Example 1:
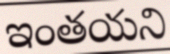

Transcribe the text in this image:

ఇంతయని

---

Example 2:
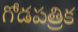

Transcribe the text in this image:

గోడపత్రిక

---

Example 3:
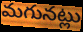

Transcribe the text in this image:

మగునట్లు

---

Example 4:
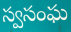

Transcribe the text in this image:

స్వసంఘ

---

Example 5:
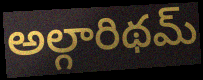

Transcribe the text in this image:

అల్గారిథమ్